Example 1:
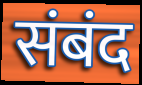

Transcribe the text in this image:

संबंद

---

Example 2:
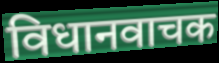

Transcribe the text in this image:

विधानवाचक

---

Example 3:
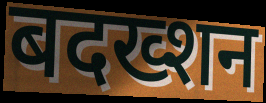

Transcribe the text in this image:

बदख्शन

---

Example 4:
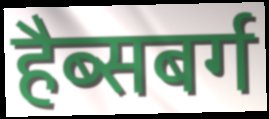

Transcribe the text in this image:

हैब्सबर्ग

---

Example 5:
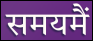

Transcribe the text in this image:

समयमैं